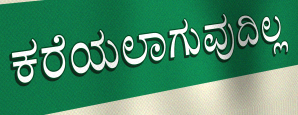
ಕರೆಯಲಾಗುವುದಿಲ್ಲ